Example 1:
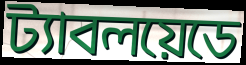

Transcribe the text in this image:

ট্যাবলয়েডে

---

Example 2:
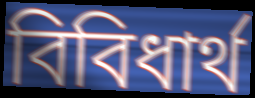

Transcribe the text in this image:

বিবিধার্থ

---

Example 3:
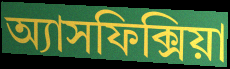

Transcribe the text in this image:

অ্যাসফিক্সিয়া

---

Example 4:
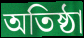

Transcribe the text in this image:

অতিষ্ঠা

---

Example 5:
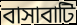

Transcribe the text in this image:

বাসাবাটি